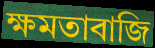
ক্ষমতাবাজি